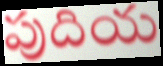
పుదియ